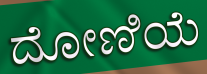
ದೋಣಿಯೆ